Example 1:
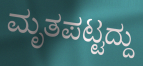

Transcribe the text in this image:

ಮೃತಪಟ್ಟದ್ದು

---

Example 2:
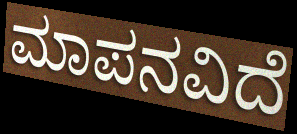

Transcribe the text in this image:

ಮಾಪನವಿದೆ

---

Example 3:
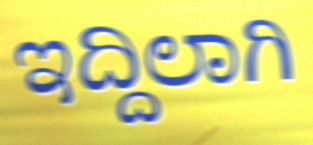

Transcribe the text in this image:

ಇದ್ದಿಲಾಗಿ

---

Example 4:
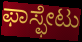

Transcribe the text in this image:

ಫಾಸ್ಫೇಟು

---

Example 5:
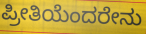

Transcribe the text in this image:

ಪ್ರೀತಿಯೆಂದರೇನು